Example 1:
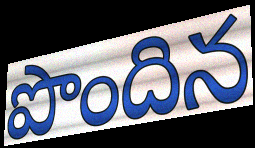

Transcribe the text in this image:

పొందిన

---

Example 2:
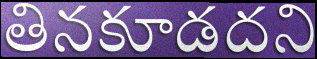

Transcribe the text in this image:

తినకూడదని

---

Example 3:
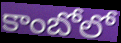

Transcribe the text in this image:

కాంబోలో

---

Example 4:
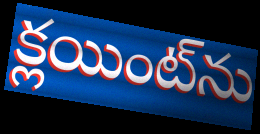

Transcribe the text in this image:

క్లయింట్‌ను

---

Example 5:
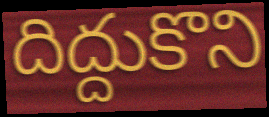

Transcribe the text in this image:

దిద్దుకొని